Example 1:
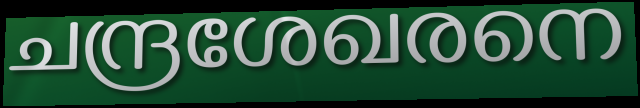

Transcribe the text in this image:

ചന്ദ്രശേഖരനെ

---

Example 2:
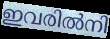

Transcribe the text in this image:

ഇവരിൽനി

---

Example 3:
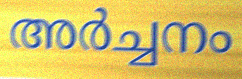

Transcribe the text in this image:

അർച്ചനം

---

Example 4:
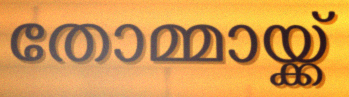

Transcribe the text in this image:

തോമ്മായ്ക്ക്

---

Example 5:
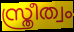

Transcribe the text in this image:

സ്ത്രീത്വം